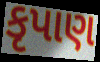
કૃપાણ